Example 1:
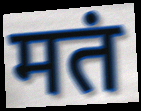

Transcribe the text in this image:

मतं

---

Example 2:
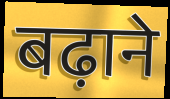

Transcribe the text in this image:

बढ़ाने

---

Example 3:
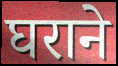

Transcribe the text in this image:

घराने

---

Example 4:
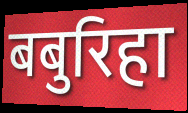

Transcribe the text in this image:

बबुरिहा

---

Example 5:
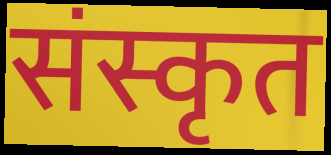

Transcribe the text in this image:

संस्कृत